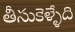
తీసుకెళ్ళేది